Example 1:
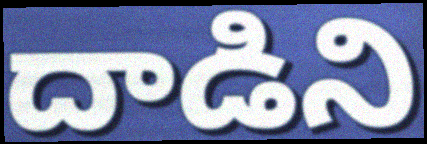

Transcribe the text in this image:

దాడిని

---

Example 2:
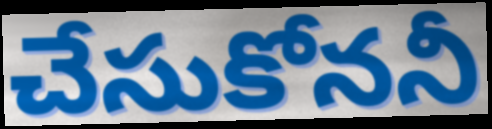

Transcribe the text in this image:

చేసుకోననీ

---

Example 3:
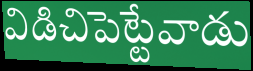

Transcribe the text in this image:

విడిచిపెట్టేవాడు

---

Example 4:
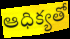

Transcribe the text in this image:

ఆధిక్యతో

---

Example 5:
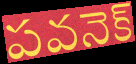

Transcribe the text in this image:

పవనెక్